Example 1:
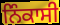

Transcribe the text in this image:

ਨਿੰਕਾਸੀ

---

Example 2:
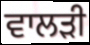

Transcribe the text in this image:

ਵਾਲੜੀ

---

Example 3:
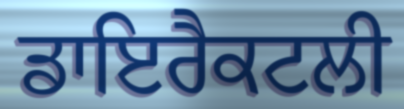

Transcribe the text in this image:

ਡਾਇਰੈਕਟਲੀ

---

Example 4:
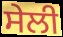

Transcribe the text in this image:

ਸੇਲੀ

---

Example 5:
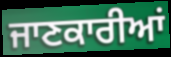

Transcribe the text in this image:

ਜਾਣਕਾਰੀਆਂ